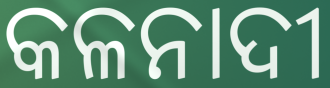
କଳନାଦୀ